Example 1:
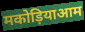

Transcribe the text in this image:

मकोड़ियाआम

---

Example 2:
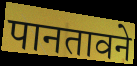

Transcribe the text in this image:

पानतावने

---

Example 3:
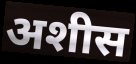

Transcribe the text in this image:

अशीस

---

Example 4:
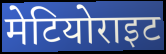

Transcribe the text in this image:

मेटियोराइट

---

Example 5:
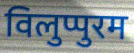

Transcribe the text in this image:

विलुप्पुरम